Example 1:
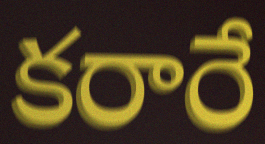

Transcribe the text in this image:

కరారే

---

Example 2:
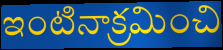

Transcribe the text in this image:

ఇంటినాక్రమించి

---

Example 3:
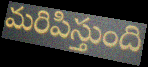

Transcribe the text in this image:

మరిపిస్తుంది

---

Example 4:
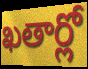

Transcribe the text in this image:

ఖతార్లో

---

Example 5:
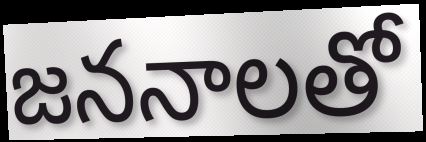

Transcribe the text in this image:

జననాలతో